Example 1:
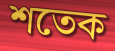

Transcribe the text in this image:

শতেক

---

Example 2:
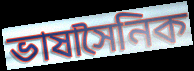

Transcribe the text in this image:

ভাষাসৈনিক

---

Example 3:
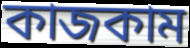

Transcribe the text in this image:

কাজকাম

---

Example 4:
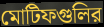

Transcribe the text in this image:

মোটিফগুলির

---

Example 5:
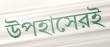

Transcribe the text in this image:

উপহাসেরই